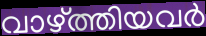
വാഴ്ത്തിയവർ